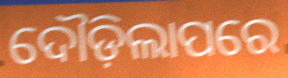
ଦୌଡ଼ିଲାପରେ